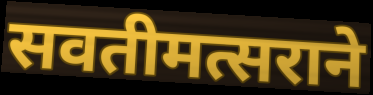
सवतीमत्सराने